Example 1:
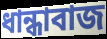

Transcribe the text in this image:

ধান্ধাবাজ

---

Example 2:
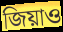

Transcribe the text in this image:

জিয়াও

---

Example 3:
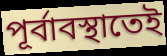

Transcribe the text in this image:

পূর্বাবস্থাতেই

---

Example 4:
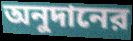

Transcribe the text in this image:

অনুদানের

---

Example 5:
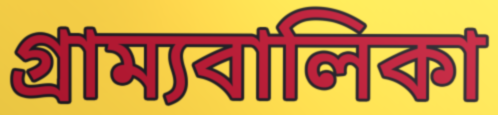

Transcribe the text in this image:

গ্রাম্যবালিকা